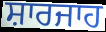
ਸ਼ਾਰਜਾਹ